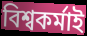
বিশ্বকর্মাই